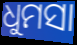
ଧୁମସା